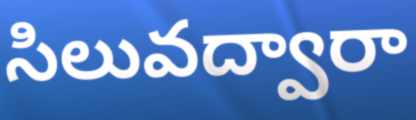
సిలువద్వారా